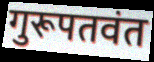
गुरूपतवंत